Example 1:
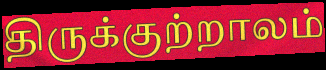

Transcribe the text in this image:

திருக்குற்றாலம்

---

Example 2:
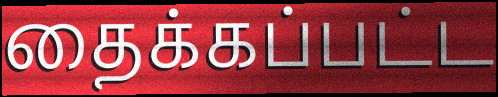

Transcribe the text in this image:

தைக்கப்பட்ட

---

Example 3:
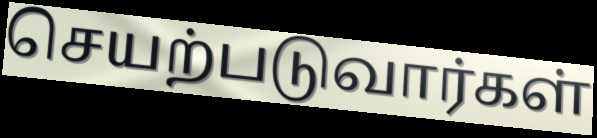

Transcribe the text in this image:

செயற்படுவார்கள்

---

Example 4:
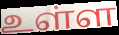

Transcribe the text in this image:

உள்ள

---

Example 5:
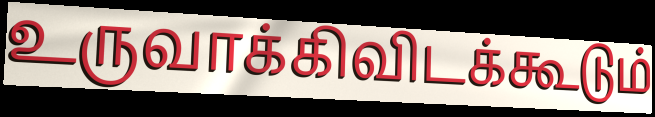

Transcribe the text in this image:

உருவாக்கிவிடக்கூடும்